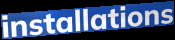
installations